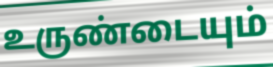
உருண்டையும்